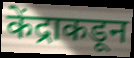
केंद्राकडून